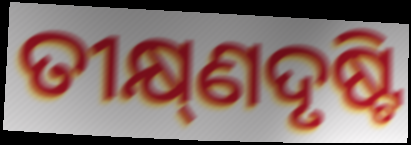
ତୀକ୍ଷ୍‌ଣଦୃଷ୍ଟି